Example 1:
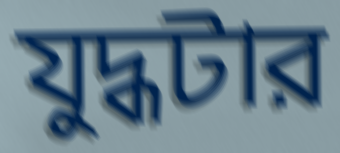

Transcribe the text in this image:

যুদ্ধটার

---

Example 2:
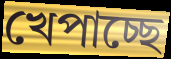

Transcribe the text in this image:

খেপাচ্ছে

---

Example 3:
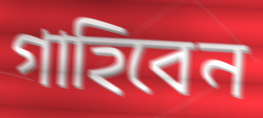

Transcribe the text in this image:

গাহিবেন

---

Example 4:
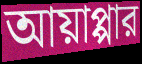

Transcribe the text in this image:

আয়াপ্পার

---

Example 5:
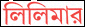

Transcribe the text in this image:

লিলিমার